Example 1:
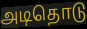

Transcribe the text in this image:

அடிதொடு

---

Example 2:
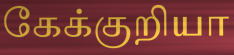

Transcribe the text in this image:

கேக்குறியா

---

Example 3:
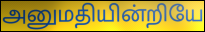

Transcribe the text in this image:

அனுமதியின்றியே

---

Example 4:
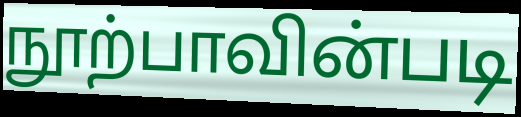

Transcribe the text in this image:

நூற்பாவின்படி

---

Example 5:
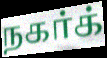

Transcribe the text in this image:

நகர்க்